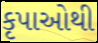
કૃપાઓથી